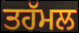
ਤਹੱਮਲ